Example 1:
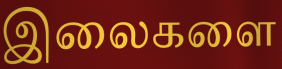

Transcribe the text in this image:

இலைகளை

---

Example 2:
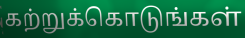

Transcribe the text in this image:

கற்றுக்கொடுங்கள்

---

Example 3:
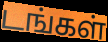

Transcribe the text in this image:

டங்கள்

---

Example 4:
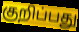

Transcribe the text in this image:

குறிப்பது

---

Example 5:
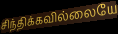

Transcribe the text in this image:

சிந்திக்கவில்லையே